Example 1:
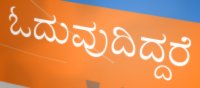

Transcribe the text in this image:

ಓದುವುದಿದ್ದರೆ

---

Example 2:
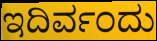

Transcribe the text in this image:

ಇದಿರ್ವಂದು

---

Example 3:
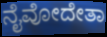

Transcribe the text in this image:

ನೈವೋದೇತಾ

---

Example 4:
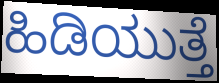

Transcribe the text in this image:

ಹಿಡಿಯುತ್ತೆ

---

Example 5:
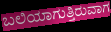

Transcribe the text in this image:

ಬಲಿಯಾಗುತ್ತಿರುವಾಗ